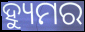
ହ୍ୟୁମର